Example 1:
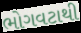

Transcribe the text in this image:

ભોગવટાથી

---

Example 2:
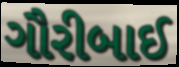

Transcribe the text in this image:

ગૌરીબાઈ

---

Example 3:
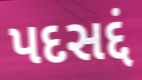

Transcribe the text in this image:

પદસદ્દં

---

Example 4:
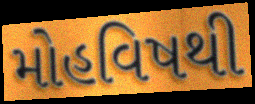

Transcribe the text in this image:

મોહવિષથી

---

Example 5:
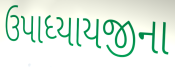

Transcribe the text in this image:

ઉપાધ્યાયજીના